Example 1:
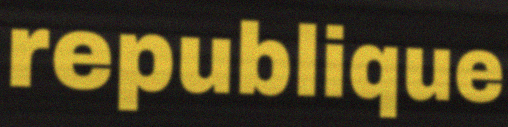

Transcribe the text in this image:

republique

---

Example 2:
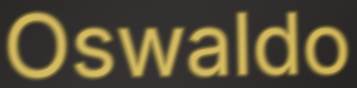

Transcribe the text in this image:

Oswaldo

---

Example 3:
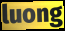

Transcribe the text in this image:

luong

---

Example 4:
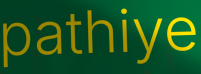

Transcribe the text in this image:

pathiye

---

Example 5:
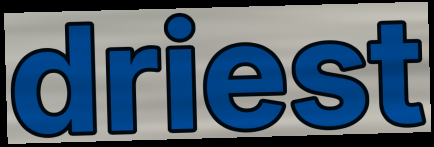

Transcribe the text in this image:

driest